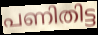
പണിതിട്ട